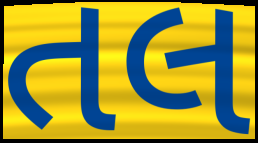
તલ